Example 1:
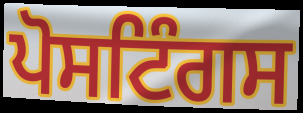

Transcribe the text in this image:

ਪੋਸਟਿੰਗਸ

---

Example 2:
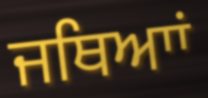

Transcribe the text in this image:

ਜਥਿਆਾਂ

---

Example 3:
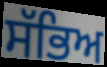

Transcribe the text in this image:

ਸੱਭਿਅ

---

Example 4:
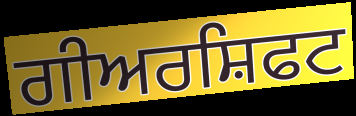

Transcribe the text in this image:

ਗੀਅਰਸ਼ਿਫਟ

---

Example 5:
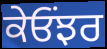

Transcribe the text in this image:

ਕੇਓਂਝਰ